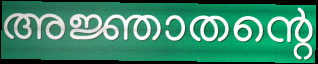
അജ്ഞാതന്റെ